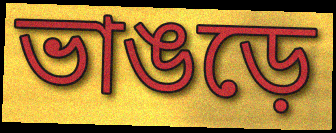
ভাঙড়ে